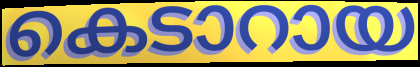
കെടാറായ